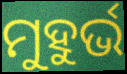
ମୁହୁର୍ଭ